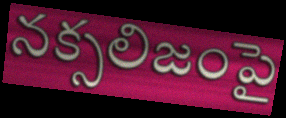
నక్సలిజంపై